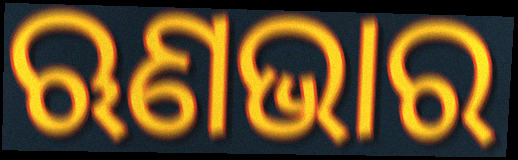
ଋଣଭାର